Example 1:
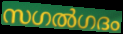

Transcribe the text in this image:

സഗൽഗദം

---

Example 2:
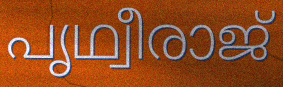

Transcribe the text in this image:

പൃഥ്വീരാജ്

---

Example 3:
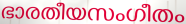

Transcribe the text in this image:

ഭാരതീയസംഗീതം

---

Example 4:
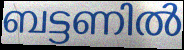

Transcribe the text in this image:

ബട്ടണിൽ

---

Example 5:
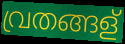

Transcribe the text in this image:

വ്രതങ്ങള്